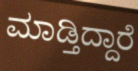
ಮಾಡ್ತಿದ್ದಾರೆ